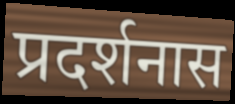
प्रदर्शनास